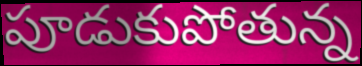
పూడుకుపోతున్న